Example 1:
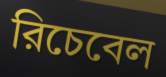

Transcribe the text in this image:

রিচেবেল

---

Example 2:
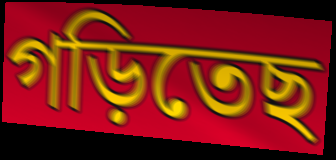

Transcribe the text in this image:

গড়িতেছ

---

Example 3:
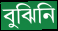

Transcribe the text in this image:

বুঝিনি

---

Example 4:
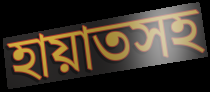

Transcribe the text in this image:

হায়াতসহ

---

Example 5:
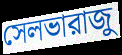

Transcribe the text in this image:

সেলভারাজু